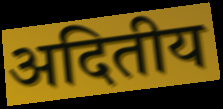
अदितीय